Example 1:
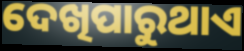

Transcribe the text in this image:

ଦେଖିପାରୁଥାଏ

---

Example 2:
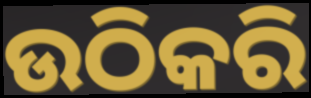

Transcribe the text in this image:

ଉଠିକରି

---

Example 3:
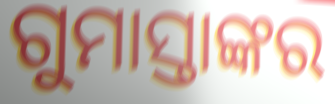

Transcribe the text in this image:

ଗୁମାସ୍ତାଙ୍କର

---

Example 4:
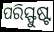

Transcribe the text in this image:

ପରିସ୍ଫୁଷ୍ଟ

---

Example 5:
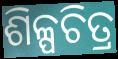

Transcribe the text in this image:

ଶିଳ୍ପଚିତ୍ର